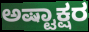
ಅಷ್ಟಾಕ್ಷರ